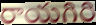
రాయగిరి